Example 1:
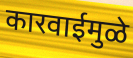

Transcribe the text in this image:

कारवाईमुळे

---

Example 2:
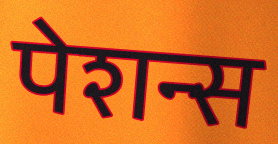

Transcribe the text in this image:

पेशन्स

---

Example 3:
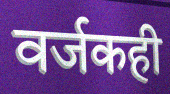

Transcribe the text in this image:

वर्जकही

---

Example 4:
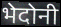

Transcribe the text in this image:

भेदोनी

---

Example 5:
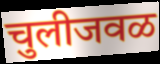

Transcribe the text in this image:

चुलीजवळ